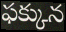
ఫక్కున